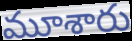
మూశారు